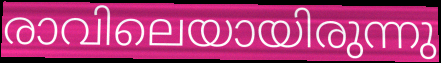
രാവിലെയായിരുന്നു